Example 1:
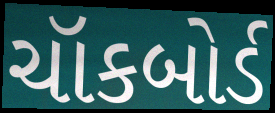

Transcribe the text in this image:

ચૉકબોર્ડ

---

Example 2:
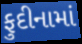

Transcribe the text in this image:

ફુદીનામાં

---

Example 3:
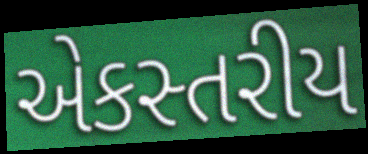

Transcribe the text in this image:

એકસ્તરીય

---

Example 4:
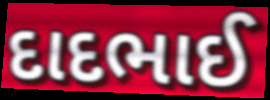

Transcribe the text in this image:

દાદભાઈ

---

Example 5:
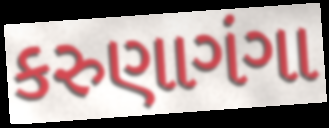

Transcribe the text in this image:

કરુણાગંગા